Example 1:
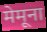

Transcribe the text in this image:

मेमूना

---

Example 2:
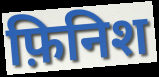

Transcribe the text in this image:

फ़िनिश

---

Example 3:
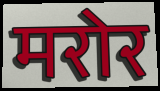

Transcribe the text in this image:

मरोर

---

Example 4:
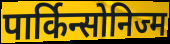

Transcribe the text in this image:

पार्किन्सोनिज्म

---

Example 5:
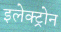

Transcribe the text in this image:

इलेक्ट्रोन